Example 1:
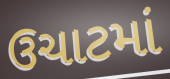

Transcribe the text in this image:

ઉચાટમાં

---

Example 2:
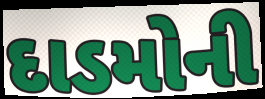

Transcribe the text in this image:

દાડમોની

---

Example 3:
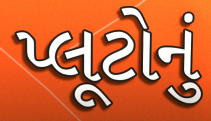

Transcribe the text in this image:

પ્લૂટોનું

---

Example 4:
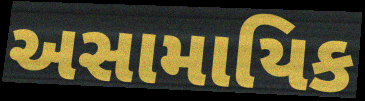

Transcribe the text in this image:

અસામાયિક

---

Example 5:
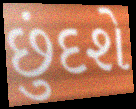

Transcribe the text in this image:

છુંદશે